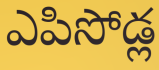
ఎపిసోడ్ల